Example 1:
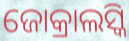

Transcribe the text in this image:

ଜୋକ୍ରାଲସ୍କି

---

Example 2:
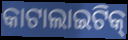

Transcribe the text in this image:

କାଟାଲାଇଟିକ୍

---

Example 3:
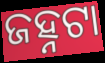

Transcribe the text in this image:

ଜହ୍ନଟା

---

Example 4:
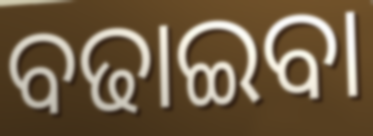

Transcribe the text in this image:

ବଢାଇବା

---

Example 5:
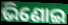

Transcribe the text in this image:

ଭିଣୋଇ